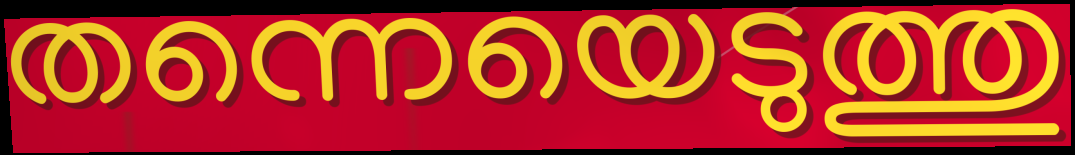
തന്നെയെടുത്തു